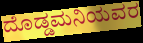
ದೊಡ್ಡಮನಿಯವರ